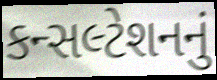
કન્સલ્ટેશનનું